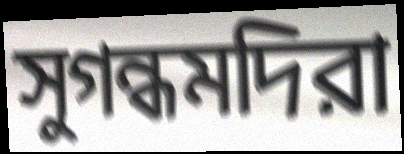
সুগন্ধমদিরা